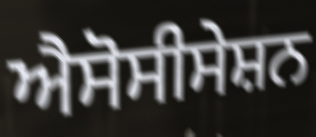
ਐਸੋਸੀਸੇਸ਼ਨ